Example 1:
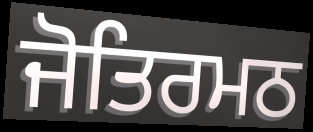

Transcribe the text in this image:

ਜੋਤਿਰਮਠ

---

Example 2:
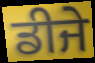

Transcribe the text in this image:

ਡੀਜੇ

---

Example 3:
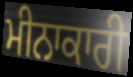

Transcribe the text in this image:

ਮੀਨਾਕਾਰੀ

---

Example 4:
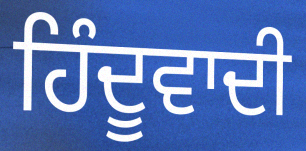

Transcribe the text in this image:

ਹਿੰਦੂਵਾਦੀ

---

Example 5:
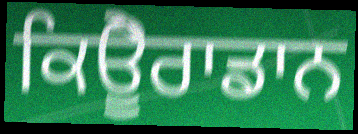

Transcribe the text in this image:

ਕਿਊੈਰਾਡਾਨ